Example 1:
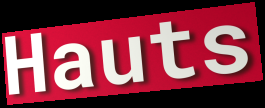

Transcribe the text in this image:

Hauts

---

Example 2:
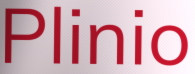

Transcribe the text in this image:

Plinio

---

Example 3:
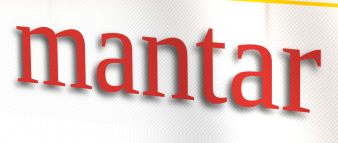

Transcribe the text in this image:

mantar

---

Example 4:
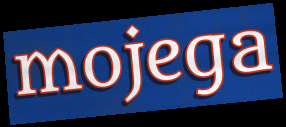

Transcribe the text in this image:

mojega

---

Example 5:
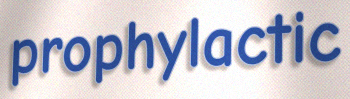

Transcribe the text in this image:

prophylactic